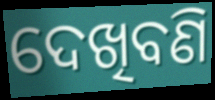
ଦେଖିବଣି